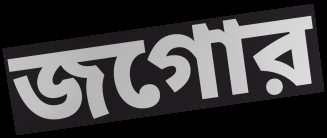
জগোর